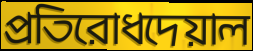
প্রতিরোধদেয়াল